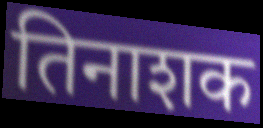
तिनाशक